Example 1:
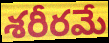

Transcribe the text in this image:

శరీరమే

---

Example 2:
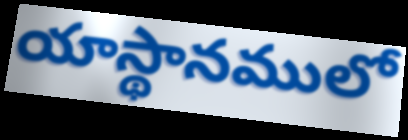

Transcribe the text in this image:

యాస్థానములో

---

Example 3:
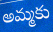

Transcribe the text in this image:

అమ్మకు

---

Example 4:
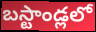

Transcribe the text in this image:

బస్టాండ్లలో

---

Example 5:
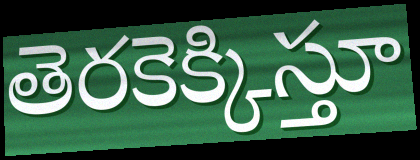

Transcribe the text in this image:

తెరకెక్కిస్తూ